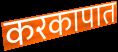
करकापात